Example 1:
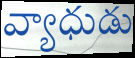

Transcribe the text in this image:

వ్యాధుడు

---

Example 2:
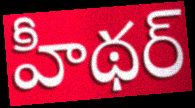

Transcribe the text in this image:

హీథర్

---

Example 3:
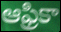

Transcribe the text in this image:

ఆఫ్రికా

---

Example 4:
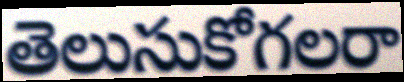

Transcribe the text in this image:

తెలుసుకోగలరా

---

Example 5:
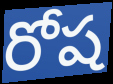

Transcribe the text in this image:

రోష